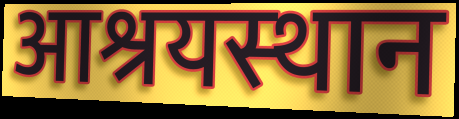
आश्रयस्थान